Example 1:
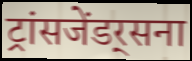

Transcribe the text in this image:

ट्रांसजेंडर्सना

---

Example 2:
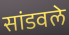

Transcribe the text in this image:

सांडवले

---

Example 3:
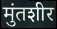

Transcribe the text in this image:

मुंतशीर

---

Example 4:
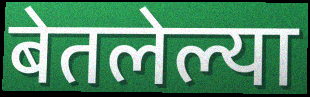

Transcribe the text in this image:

बेतलेल्या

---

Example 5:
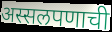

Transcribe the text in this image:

अस्सलपणाची